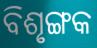
ବିଶୃଙ୍ଗକ